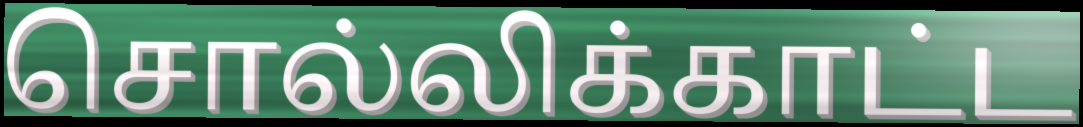
சொல்லிக்காட்ட